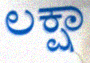
ಲಕ್ಷಾ